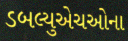
ડબલ્યુએચઓના